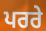
ਪਰਰੇ